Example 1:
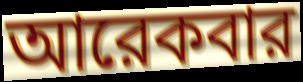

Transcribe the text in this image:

আরেকবার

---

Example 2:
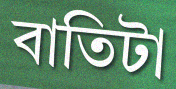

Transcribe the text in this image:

বাতিটা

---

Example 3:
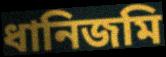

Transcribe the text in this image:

ধানিজমি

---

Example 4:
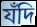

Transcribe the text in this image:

যঁদি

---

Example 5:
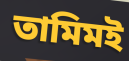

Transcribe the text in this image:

তামিমই